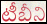
టీబీని